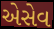
એસેવ